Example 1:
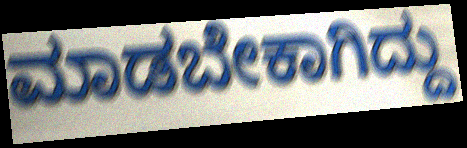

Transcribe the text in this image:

ಮಾಡಬೇಕಾಗಿದ್ದು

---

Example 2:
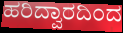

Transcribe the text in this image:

ಹರಿದ್ವಾರದಿಂದ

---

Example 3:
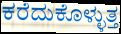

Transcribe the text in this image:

ಕರೆದುಕೊಳ್ಳುತ್ತ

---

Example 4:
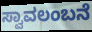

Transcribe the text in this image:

ಸ್ವಾವಲಂಬನೆ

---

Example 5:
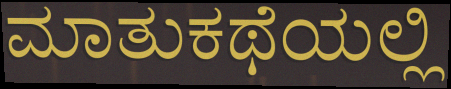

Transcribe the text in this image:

ಮಾತುಕಥೆಯಲ್ಲಿ